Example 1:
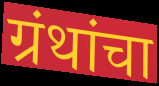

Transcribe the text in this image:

ग्रंथांचा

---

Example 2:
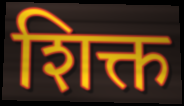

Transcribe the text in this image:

शिक्त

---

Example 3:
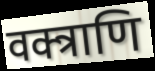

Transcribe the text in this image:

वक्त्राणि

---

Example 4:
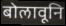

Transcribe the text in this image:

बोलावूनि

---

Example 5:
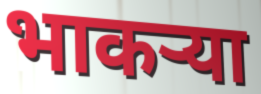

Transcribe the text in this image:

भाकर्‍या